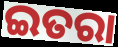
ଇତରା